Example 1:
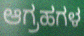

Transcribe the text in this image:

ಆಗ್ರಹಗಳ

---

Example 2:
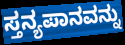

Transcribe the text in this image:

ಸ್ತನ್ಯಪಾನವನ್ನು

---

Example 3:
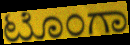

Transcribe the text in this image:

ಟೊಂಗಾ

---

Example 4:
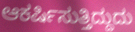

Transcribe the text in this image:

ಆಕರ್ಷಿಸುತ್ತಿದ್ದುದು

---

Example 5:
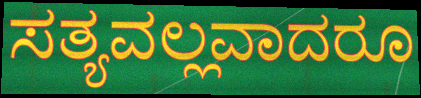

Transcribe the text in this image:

ಸತ್ಯವಲ್ಲವಾದರೂ